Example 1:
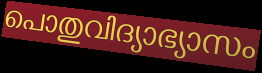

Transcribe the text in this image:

പൊതുവിദ്യാഭ്യാസം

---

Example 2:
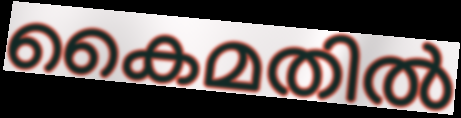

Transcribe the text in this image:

കൈമതിൽ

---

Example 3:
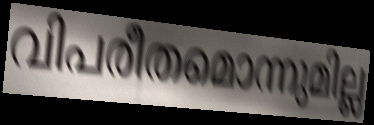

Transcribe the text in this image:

വിപരീതമൊന്നുമില്ല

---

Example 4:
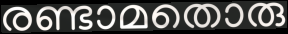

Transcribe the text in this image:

രണ്ടാമതൊരു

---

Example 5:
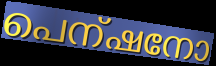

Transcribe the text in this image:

പെന്ഷനോ